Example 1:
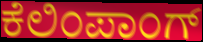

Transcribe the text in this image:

ಕೆಲಿಂಪಾಂಗ್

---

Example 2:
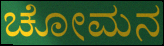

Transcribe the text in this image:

ಚೋಮನ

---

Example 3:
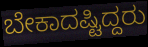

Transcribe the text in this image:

ಬೇಕಾದಷ್ಟಿದ್ದರು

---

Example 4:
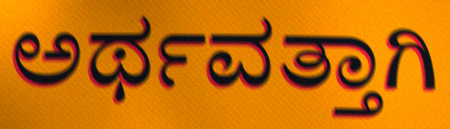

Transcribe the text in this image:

ಅರ್ಥವತ್ತಾಗಿ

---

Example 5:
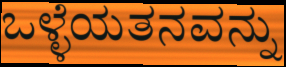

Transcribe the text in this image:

ಒಳ್ಳೆಯತನವನ್ನು